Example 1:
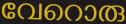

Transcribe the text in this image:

വേറൊരു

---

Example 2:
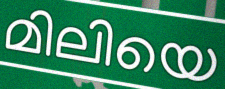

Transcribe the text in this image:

മിലിയെ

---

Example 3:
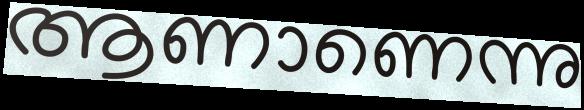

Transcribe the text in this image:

ആണാണെന്നു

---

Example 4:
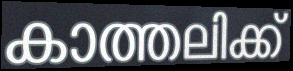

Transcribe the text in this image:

കാത്തലിക്ക്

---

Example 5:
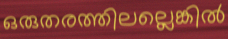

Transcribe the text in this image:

ഒരുതരത്തിലല്ലെങ്കിൽ